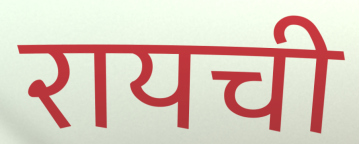
रायची